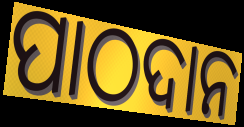
ପାଠଦାନ